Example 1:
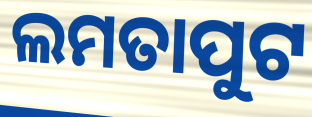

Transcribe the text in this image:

ଲମତାପୁଟ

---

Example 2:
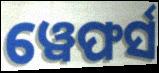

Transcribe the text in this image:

ୱେଫର୍ସ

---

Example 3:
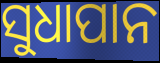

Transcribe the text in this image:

ସୁଧାପାନ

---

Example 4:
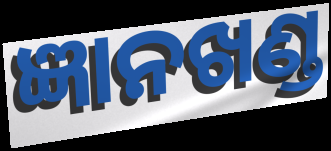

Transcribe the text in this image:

ଜ୍ଞାନଖଣ୍ଡ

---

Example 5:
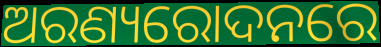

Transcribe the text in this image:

ଅରଣ୍ୟରୋଦନରେ